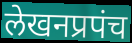
लेखनप्रपंच